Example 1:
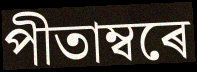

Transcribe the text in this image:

পীতাম্বৰে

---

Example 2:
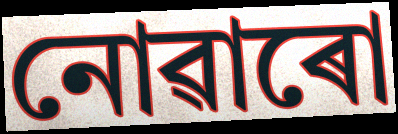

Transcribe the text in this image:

নোৱাৰো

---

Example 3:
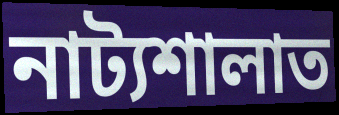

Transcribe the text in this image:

নাট্যশালাত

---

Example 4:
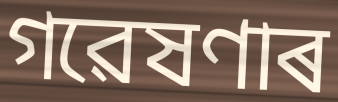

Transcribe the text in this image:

গৱেষণাৰ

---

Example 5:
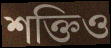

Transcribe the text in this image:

শক্তিও